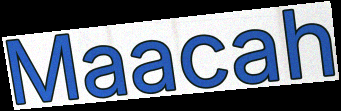
Maacah